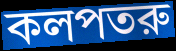
কলপতরু